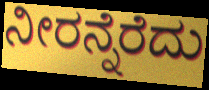
ನೀರನ್ನೆರೆದು